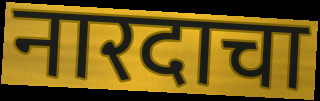
नारदाचा